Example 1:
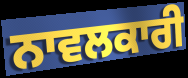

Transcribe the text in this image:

ਨਾਵਲਕਾਰੀ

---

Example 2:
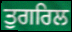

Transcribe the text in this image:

ਤੁਗਰਿਲ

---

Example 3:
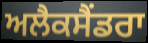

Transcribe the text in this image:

ਅਲੈਕਸੈਂਡਰਾ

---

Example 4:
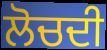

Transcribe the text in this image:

ਲੋਚਦੀ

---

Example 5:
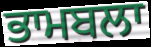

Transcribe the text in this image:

ਭਾਮਬਲਾ